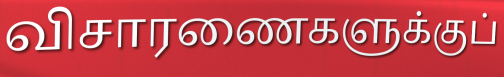
விசாரணைகளுக்குப்